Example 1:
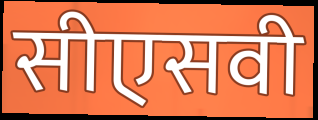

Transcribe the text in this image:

सीएसवी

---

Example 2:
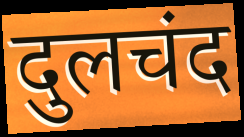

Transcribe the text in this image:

दुलचंद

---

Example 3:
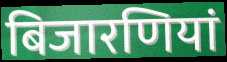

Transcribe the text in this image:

बिजारणियां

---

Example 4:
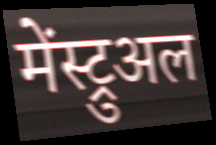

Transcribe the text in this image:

मेंस्ट्रुअल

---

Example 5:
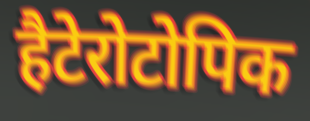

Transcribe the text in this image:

हैटेरोटोपिक